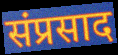
संप्रसाद